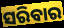
ସରିବାର